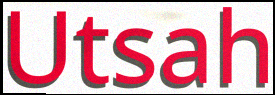
Utsah